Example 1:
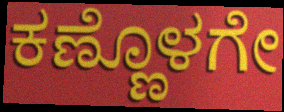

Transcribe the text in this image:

ಕಣ್ಣೊಳಗೇ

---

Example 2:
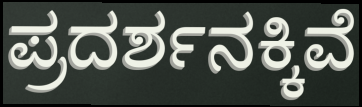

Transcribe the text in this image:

ಪ್ರದರ್ಶನಕ್ಕಿವೆ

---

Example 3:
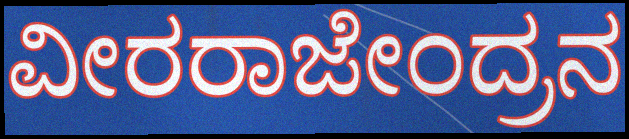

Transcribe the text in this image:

ವೀರರಾಜೇಂದ್ರನ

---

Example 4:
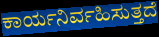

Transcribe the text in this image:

ಕಾರ್ಯನಿರ್ವಹಿಸುತ್ತದೆ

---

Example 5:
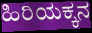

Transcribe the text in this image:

ಹಿರಿಯಕ್ಕನ